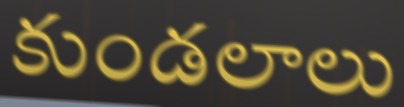
కుండలాలు